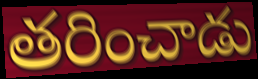
తరించాడు